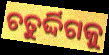
ଚତୁର୍ଦ୍ଦିଗକୁ